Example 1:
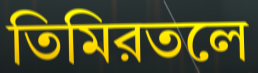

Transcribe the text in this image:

তিমিরতলে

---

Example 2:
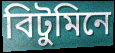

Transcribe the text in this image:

বিটুমিনে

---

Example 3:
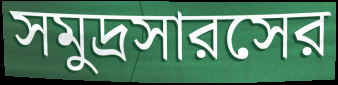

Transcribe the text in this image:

সমুদ্রসারসের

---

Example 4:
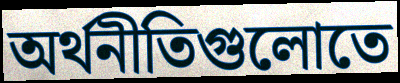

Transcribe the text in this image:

অর্থনীতিগুলোতে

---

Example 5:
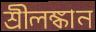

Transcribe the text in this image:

শ্রীলঙ্কান